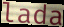
lada